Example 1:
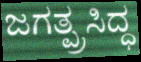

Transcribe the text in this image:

ಜಗತ್ಪ್ರಸಿದ್ಧ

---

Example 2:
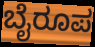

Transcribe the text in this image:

ಬೈರೂಪ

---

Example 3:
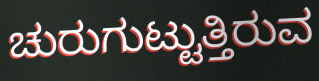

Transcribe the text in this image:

ಚುರುಗುಟ್ಟುತ್ತಿರುವ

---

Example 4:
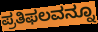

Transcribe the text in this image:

ಪ್ರತಿಫಲವನ್ನೂ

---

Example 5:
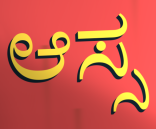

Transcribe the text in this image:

ಆಸ್ಸ